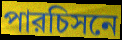
পারচিসনে